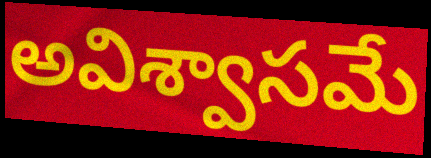
అవిశ్వాసమే